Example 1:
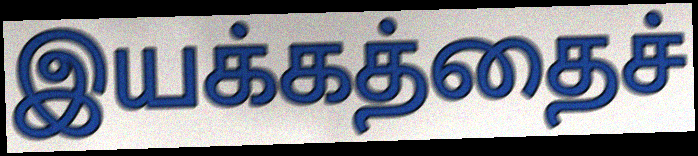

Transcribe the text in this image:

இயக்கத்தைச்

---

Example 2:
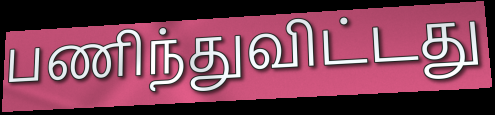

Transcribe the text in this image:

பணிந்துவிட்டது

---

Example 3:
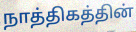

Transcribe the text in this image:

நாத்திகத்தின்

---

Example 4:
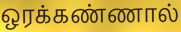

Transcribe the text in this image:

ஒரக்கண்ணால்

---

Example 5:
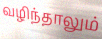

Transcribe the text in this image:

வழிந்தாலும்